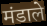
मंडाले